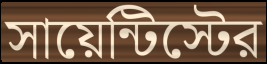
সায়েন্টিস্টের